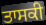
ਤਾਸਕੀ